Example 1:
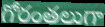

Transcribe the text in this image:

గోరంతలుగా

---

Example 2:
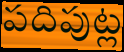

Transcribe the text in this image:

పదిపుట్ల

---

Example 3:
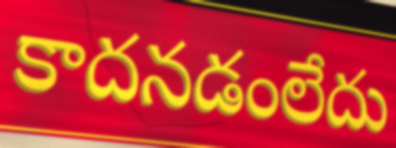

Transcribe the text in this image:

కాదనడంలేదు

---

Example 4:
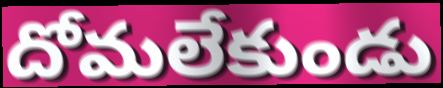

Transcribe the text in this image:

దోమలేకుండు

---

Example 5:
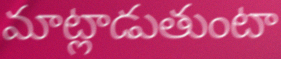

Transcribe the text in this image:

మాట్లాడుతుంటా